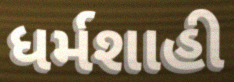
ધર્મશાહી